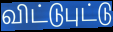
விட்டுபுட்டு